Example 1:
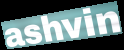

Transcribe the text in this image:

ashvin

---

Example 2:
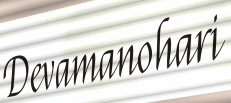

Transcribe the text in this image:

Devamanohari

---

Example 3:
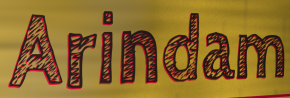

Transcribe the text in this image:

Arindam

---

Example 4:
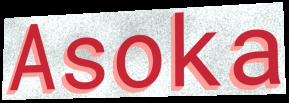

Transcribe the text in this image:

Asoka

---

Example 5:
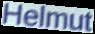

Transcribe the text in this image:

Helmut